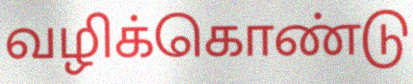
வழிக்கொண்டு